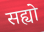
सह्यो